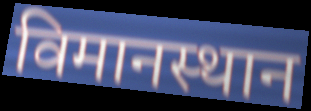
विमानस्थान